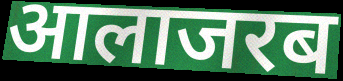
आलाजरब